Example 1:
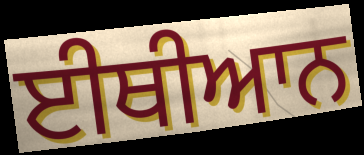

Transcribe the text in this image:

ਈਥੀਆਨ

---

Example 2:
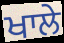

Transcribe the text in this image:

ਖਾਲੇ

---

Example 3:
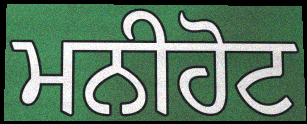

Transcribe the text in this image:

ਮਨੀਹੋਟ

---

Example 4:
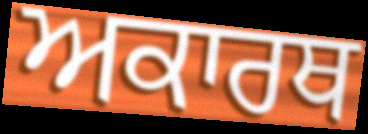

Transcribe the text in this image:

ਅਕਾਰਥ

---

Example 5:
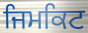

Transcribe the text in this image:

ਜਿਮਕਿਟ